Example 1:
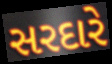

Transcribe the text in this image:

સરદારે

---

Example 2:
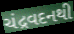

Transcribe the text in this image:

ચંદ્રવદનથી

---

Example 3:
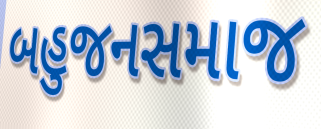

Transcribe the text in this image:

બહુજનસમાજ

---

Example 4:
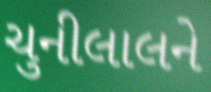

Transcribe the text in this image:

ચુનીલાલને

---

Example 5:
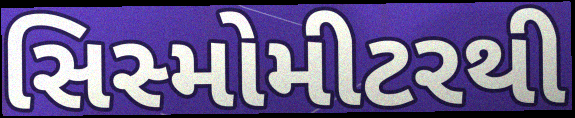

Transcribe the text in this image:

સિસ્મોમીટરથી